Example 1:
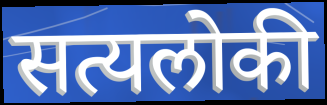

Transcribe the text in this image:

सत्यलोकी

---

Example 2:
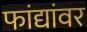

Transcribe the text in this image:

फांद्यांवर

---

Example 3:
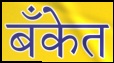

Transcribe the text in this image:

बँकेत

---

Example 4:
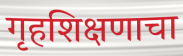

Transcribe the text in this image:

गृहशिक्षणाचा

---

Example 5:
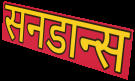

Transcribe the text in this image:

सनडान्स